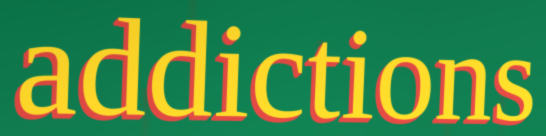
addictions